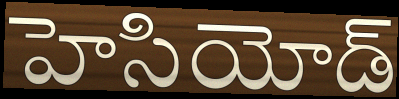
హెసియోడ్